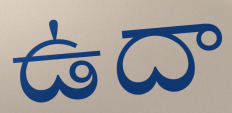
ఉదా